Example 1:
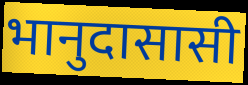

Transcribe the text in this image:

भानुदासासी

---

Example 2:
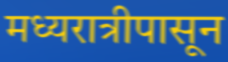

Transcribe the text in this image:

मध्यरात्रीपासून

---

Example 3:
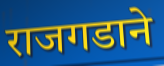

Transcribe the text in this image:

राजगडाने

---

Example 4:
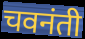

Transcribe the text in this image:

चवनंती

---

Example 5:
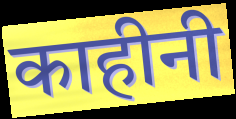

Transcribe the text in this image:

काहीनी